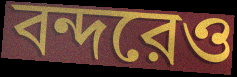
বন্দরেও